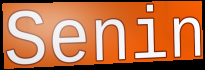
Senin